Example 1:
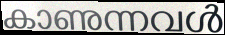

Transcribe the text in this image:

കാണുന്നവൾ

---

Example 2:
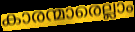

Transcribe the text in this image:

കാരന്മാരെല്ലാം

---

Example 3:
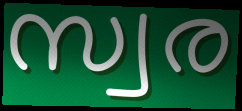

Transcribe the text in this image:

സ്വര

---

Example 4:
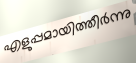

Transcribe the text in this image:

എളുപ്പമായിത്തീർന്നു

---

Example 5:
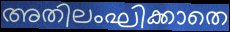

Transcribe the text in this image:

അതിലംഘിക്കാതെ